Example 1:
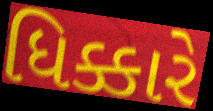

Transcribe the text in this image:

ધિક્કારે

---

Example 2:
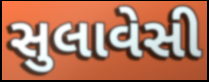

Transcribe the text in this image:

સુલાવેસી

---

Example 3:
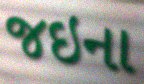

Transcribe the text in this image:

જઇના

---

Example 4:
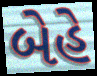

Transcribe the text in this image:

બેહે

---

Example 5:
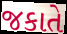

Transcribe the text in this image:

જકાતે